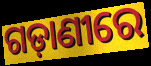
ଗଡ଼ାଣୀରେ